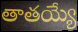
తాతయ్యే